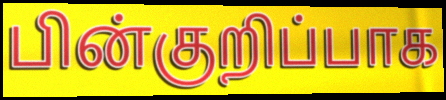
பின்குறிப்பாக